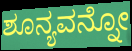
ಶೂನ್ಯವನ್ನೋ